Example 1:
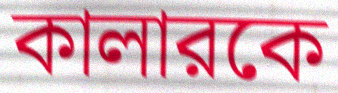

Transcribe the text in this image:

কালারকে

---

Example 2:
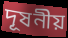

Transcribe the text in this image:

দূষনীয়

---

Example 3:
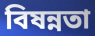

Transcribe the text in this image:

বিষন্নতা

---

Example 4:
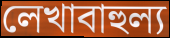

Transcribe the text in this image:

লেখাবাহুল্য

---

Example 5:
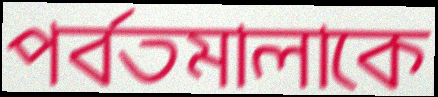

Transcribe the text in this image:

পর্বতমালাকে